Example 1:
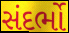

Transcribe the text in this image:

સંદર્ભો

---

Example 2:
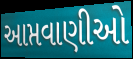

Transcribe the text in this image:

આપ્તવાણીઓ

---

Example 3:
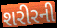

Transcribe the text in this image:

શરીરની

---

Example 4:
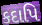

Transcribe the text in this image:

કદાપિ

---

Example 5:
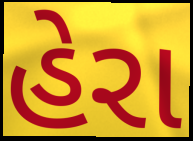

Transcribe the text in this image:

હેરા